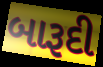
બારૂદી